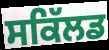
ਸਕਿੱਲਡ